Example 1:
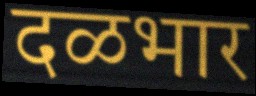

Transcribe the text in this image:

दळभार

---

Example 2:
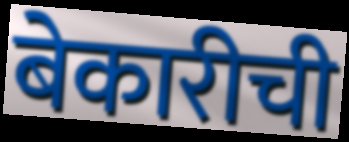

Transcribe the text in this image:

बेकारीची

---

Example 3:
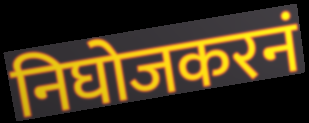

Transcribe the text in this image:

निघोजकरनं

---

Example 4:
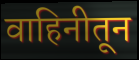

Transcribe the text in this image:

वाहिनीतून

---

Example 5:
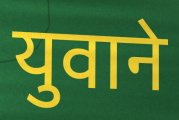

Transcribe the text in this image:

युवाने